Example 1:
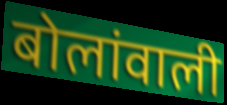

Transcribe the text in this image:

बोलांवाली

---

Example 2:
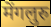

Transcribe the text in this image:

मेंगलुरु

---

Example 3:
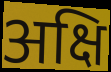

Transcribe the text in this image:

अक्षि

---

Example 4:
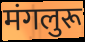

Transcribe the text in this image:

मंगलुरू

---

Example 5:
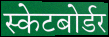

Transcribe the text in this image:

स्केटबोर्डर